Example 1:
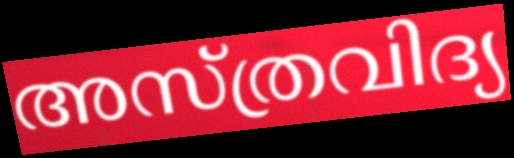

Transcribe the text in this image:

അസ്ത്രവിദ്യ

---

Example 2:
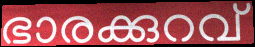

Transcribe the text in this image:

ഭാരക്കുറവ്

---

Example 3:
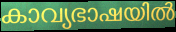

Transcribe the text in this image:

കാവ്യഭാഷയിൽ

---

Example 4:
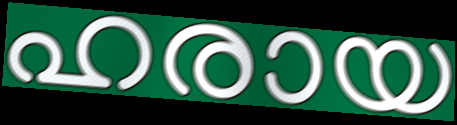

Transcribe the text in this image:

ഹരായ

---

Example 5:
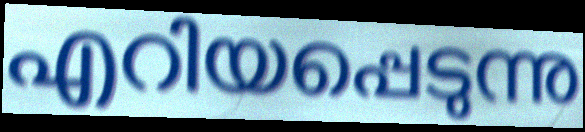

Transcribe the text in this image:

എറിയപ്പെടുന്നു